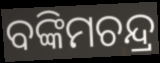
ବଙ୍କିମଚନ୍ଦ୍ର